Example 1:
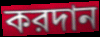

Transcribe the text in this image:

করদান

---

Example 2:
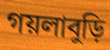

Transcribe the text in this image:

গয়লাবুড়ি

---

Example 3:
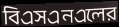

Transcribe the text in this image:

বিএসএনএলের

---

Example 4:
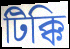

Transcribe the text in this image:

টিক্কি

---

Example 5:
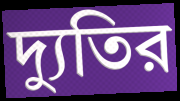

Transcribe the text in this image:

দ্যুতির